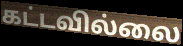
கட்டவில்லை